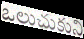
ఒలుచుకుని